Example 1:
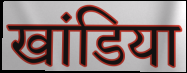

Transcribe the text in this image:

खांडिया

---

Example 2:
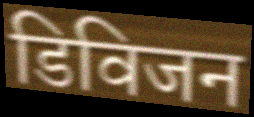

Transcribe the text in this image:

डिविजन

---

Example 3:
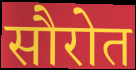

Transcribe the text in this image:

सौरोत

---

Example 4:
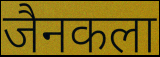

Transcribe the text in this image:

जैनकला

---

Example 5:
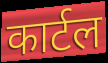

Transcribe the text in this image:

कार्टल